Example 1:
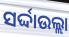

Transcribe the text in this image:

ସର୍ଦ୍ଦାଉଲ୍ଲା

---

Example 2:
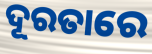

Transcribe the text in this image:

ଦୂରତାରେ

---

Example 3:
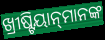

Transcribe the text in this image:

ଖ୍ରୀଷ୍ଟିୟାନ୍‌ମାନଙ୍କ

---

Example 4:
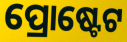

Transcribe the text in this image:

ପ୍ରୋଷ୍ଟେଟ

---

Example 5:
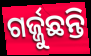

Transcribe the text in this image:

ଗର୍ଜ୍ଜୁଛନ୍ତି